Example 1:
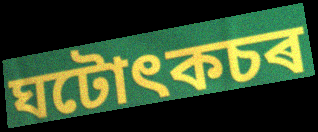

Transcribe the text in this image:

ঘটোৎকচৰ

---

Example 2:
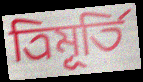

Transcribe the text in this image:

ত্ৰিমূৰ্তি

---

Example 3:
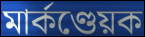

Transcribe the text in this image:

মাৰ্কণ্ডেয়ক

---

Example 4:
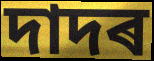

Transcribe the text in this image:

দাদৰ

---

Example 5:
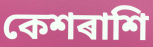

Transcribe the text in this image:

কেশৰাশি